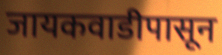
जायकवाडीपासून